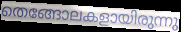
തെങ്ങോലകളായിരുന്നു